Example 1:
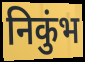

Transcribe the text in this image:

निकुंभ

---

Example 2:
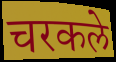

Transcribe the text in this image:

चरकले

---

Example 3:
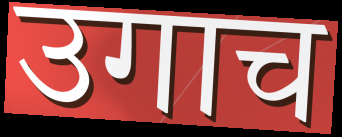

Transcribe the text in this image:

उगाच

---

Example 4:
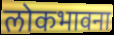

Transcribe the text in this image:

लोकभावना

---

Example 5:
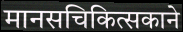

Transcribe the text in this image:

मानसचिकित्सकाने